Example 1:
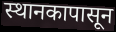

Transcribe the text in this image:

स्थानकापासून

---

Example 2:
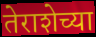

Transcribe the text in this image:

तेराशेच्या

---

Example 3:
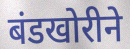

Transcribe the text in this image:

बंडखोरीने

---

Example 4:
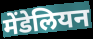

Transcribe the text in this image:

मेंडेलियन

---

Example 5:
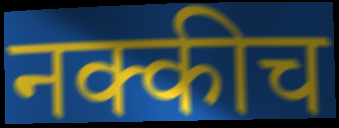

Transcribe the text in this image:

नक्कीच